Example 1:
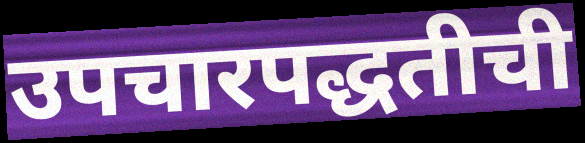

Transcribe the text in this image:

उपचारपद्धतीची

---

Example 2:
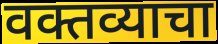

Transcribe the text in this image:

वक्तव्याचा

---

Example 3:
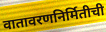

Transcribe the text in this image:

वातावरणनिर्मितीची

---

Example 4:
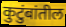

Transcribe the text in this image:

कुटुंबांतील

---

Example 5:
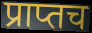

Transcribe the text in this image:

प्राप्तच